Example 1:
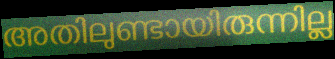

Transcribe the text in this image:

അതിലുണ്ടായിരുന്നില്ല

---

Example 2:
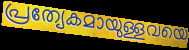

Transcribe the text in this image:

പ്രത്യേകമായുള്ളവയെ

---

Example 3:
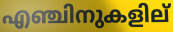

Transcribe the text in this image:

എഞ്ചിനുകളില്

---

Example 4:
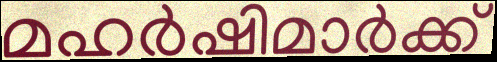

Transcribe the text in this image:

മഹർഷിമാർക്ക്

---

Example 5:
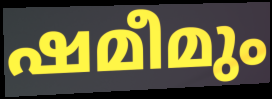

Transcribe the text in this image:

ഷമീമും